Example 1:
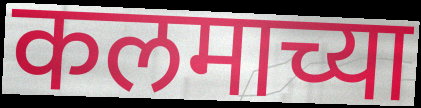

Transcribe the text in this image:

कलमाच्या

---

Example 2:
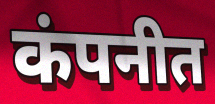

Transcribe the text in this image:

कंपनीत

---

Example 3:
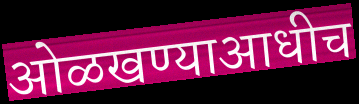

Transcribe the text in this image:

ओळखण्याआधीच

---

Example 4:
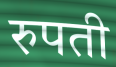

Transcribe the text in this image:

रुपती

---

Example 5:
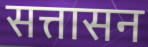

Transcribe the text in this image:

सत्तासन